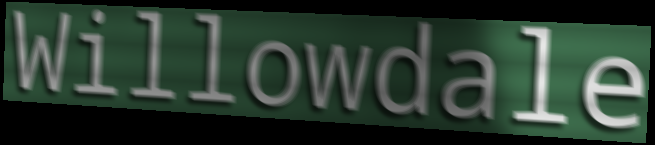
Willowdale